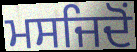
ਮਸਜਿਦੋਂ